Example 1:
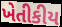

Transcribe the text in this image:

ખેતીકીય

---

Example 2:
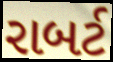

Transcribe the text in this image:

રાબર્ટ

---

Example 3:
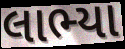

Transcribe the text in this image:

લાભ્યા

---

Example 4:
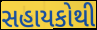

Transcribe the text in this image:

સહાયકોથી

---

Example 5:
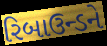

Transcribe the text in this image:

રિબાઉન્ડને